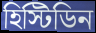
হিস্টিডিন